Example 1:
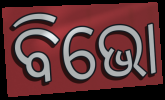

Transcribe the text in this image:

ବିଭୋ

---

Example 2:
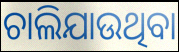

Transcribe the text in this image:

ଚାଲିଯାଉଥିବା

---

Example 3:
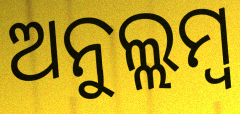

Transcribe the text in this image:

ଅନୁଲ୍ଲମ୍ବ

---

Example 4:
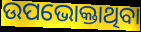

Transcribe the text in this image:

ଉପଭୋକ୍ତାଥିବା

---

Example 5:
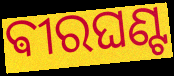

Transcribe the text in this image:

ଵୀରଘଣ୍ଟ